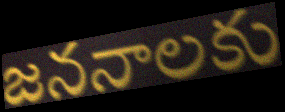
జననాలకు